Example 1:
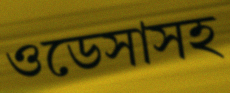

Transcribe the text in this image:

ওডেসাসহ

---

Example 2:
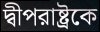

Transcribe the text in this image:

দ্বীপরাষ্ট্রকে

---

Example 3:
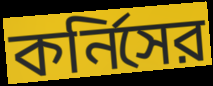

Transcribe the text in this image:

কর্নিসের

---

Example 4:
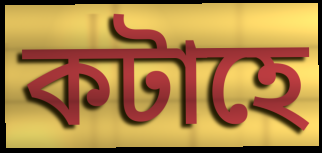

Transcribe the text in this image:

কটাহে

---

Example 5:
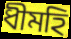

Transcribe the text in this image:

ধীমহি